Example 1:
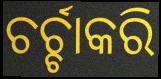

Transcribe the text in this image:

ଚର୍ଚ୍ଚାକରି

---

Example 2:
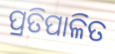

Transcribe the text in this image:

ପ୍ରତିପାଳିତ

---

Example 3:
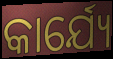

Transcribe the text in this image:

କାର୍ଯ୍ୟେ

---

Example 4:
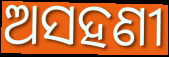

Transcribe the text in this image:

ଅସହଣୀ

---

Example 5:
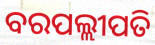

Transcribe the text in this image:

ବରପଲ୍ଲୀପତି